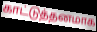
காட்டுத்தனமாக